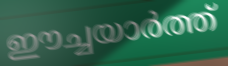
ഈച്ചയാർത്ത്